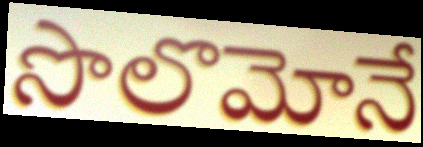
సొలొమోనే